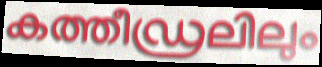
കത്തീഡ്രലിലും